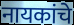
नायकांचे